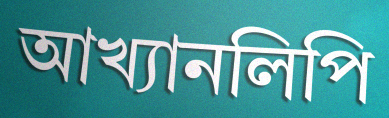
আখ্যানলিপি